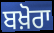
ਬਖ਼ੋਰਾ